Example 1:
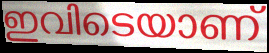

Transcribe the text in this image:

ഇവിടെയാണ്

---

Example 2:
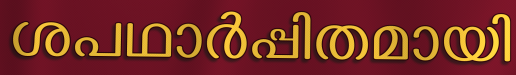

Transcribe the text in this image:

ശപഥാർപ്പിതമായി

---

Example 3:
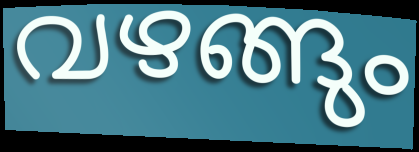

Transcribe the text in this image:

വഴങ്ങും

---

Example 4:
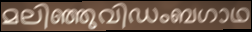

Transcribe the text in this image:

മലിഞ്ഞുവിഡംബഗാഥ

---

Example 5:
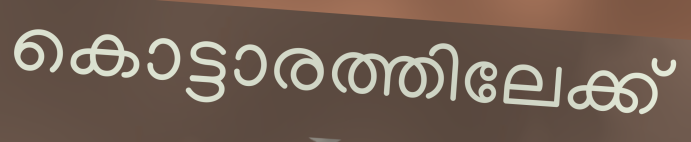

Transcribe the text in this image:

കൊട്ടാരത്തിലേക്ക്